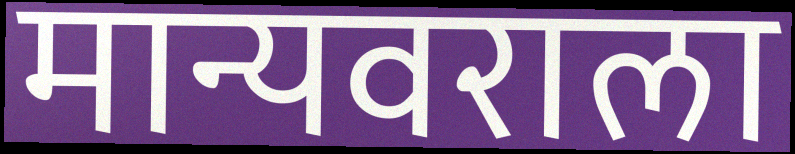
मान्यवराला